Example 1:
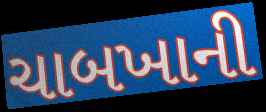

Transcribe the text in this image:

ચાબખાની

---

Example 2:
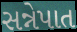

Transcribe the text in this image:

સન્નેપાત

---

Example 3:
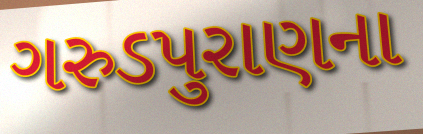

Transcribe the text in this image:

ગરુડપુરાણના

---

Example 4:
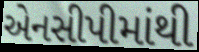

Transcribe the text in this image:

એનસીપીમાંથી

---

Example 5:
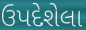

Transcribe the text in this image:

ઉપદેશેલા